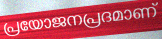
പ്രയോജനപ്രദമാണ്